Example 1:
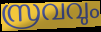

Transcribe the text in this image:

സ്രവവും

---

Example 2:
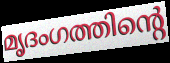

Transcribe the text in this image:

മൃദംഗത്തിന്റെ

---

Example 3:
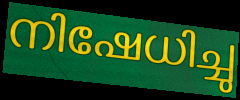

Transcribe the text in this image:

നിഷേധിച്ചു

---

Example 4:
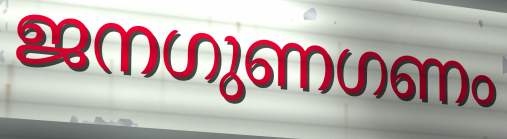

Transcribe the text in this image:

ജനഗുണഗണം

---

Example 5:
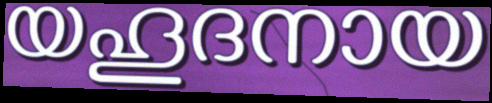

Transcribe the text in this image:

യഹൂദനായ